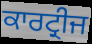
ਕਾਰਟ੍ਰੀਜ